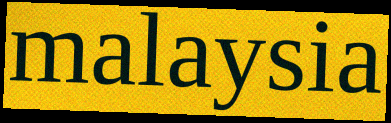
malaysia